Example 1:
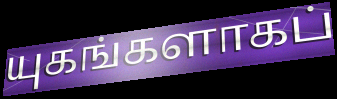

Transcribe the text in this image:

யுகங்களாகப்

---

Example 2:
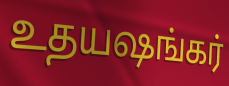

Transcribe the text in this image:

உதயஷங்கர்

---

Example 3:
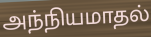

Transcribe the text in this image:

அந்நியமாதல்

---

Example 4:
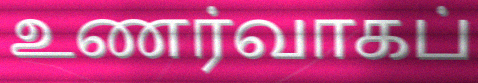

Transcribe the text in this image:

உணர்வாகப்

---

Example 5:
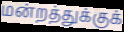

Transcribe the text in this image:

மன்றத்துக்குக்